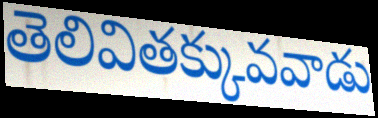
తెలివితక్కువవాడు